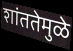
शांततेमुळे